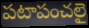
పటాపంచలై